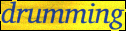
drumming